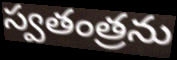
స్వతంత్రను